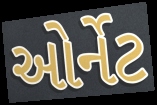
ઓર્નેટ